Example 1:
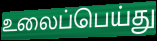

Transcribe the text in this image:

உலைப்பெய்து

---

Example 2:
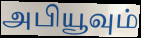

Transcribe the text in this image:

அபியூவும்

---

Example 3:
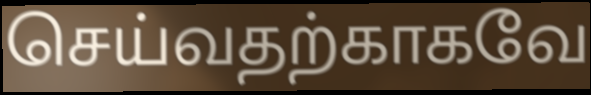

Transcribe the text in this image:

செய்வதற்காகவே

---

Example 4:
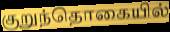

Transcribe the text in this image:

குறுந்தொகையில்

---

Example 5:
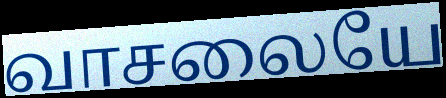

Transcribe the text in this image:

வாசலையே